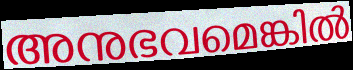
അനുഭവമെങ്കിൽ